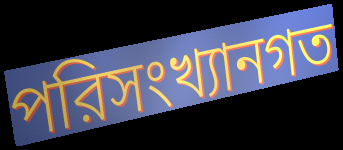
পরিসংখ্যানগত